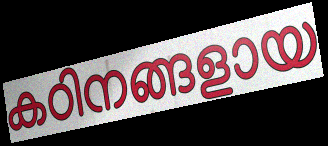
കഠിനങ്ങളായ